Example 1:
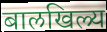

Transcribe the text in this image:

बालखिल्य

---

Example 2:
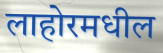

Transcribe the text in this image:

लाहोरमधील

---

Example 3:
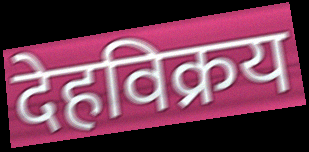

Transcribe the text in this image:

देहविक्रय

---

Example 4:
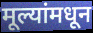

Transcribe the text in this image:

मूल्यांमधून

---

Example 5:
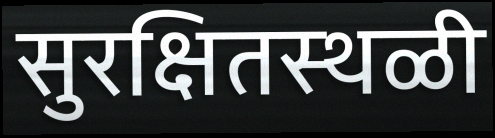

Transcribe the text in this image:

सुरक्षितस्थळी